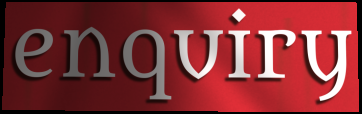
enquiry